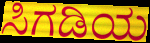
ಸಿಗಡಿಯ